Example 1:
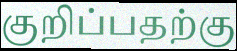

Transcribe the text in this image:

குறிப்பதற்கு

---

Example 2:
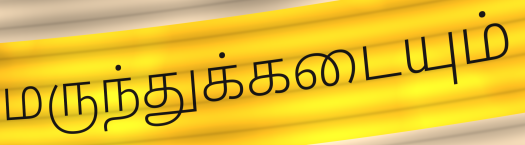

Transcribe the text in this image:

மருந்துக்கடையும்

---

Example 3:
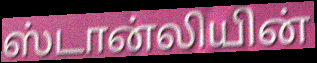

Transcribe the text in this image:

ஸ்டான்லியின்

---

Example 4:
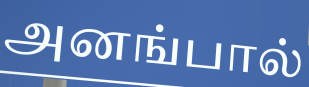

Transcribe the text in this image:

அனங்பால்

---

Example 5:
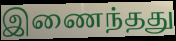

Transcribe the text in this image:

இணைந்தது